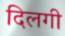
दिलगी